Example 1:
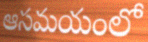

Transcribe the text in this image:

ఆసమయంలో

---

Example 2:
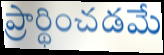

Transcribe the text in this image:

ప్రార్థించడమే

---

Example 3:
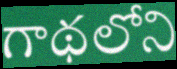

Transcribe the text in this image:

గాథలోని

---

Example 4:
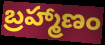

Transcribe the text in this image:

బ్రహ్మాణం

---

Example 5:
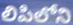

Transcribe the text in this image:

లిపిలోని